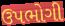
ઉપભોગી